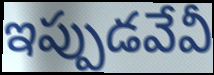
ఇప్పుడవేవీ